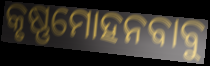
କୃଷ୍ଣମୋହନବାବୁ